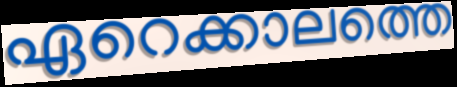
ഏറെക്കാലത്തെ